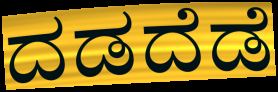
ದಡದೆಡೆ